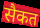
सैकत